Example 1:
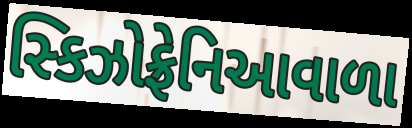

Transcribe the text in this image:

સ્કિઝોફ્રેનિઆવાળા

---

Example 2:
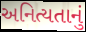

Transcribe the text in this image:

અનિત્યતાનું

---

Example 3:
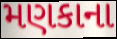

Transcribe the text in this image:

મણકાના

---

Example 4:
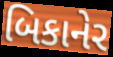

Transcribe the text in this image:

બિકાનેર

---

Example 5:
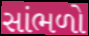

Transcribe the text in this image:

સાંભળો